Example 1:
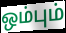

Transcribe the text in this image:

ஒம்பும்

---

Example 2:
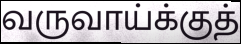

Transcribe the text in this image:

வருவாய்க்குத்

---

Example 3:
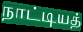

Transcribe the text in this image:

நாட்டியத்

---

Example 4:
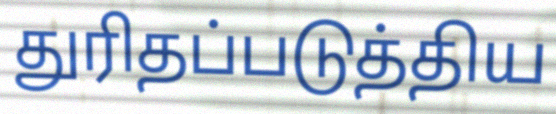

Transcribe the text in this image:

துரிதப்படுத்திய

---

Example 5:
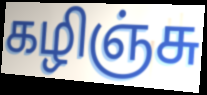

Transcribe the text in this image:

கழிஞ்சு